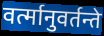
वर्त्मानुवर्तन्ते